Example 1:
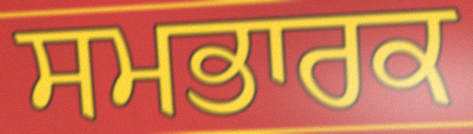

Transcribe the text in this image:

ਸਮਭਾਰਕ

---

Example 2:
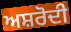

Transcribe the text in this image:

ਅਸ਼ਰੋਦੀ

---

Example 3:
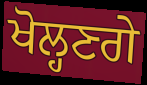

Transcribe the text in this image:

ਖੋਲ੍ਹਣਗੇ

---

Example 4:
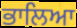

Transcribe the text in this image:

ਭਾਲਿਆ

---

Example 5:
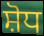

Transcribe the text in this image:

ਸ਼ੋਧ